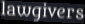
lawgivers